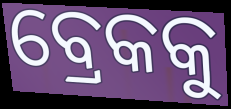
ବ୍ରେକକୁ